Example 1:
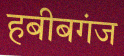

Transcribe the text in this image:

हबीबगंज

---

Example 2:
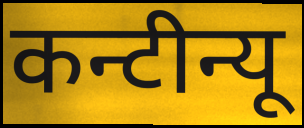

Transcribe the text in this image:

कन्टीन्यू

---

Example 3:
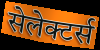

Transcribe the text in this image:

सेलेक्टर्स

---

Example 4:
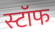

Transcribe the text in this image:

स्‍टॉफ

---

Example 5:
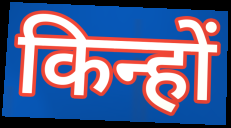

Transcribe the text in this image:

किन्हों